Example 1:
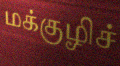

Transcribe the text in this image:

மக்குழிச்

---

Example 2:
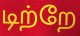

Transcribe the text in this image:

டிற்றே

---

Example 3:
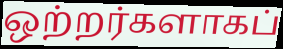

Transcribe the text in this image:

ஒற்றர்களாகப்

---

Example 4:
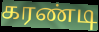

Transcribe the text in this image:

கரண்டி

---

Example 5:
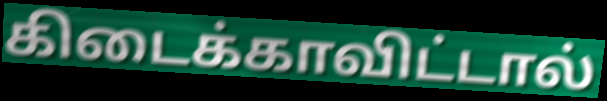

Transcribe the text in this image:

கிடைக்காவிட்டால்